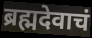
ब्रह्मदेवाचं